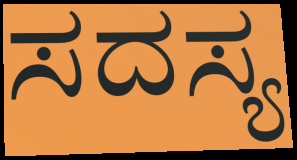
ಸದಸ್ಯ